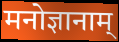
मनोज्ञानाम्